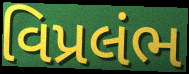
વિપ્રલંભ